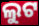
ଲୁଟ